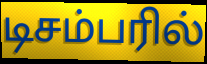
டிசம்பரில்